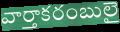
వార్తాకరంబులై